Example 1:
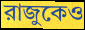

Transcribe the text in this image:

রাজুকেও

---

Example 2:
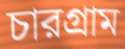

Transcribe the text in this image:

চারগ্রাম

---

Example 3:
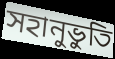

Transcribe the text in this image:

সহানুভুতি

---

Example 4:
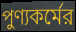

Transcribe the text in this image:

পুণ্যকর্মের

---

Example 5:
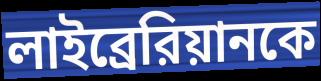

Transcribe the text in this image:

লাইব্রেরিয়ানকে